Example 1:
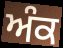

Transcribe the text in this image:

ਅੰਕ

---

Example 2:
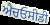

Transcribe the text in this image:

ਐਚਓਸੀਡੀ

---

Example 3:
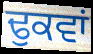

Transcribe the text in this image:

ਢੁਕਵਾਂ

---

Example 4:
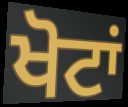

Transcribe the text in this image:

ਖੋਟਾਂ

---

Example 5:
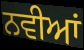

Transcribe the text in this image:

ਨਵੀਆਂ